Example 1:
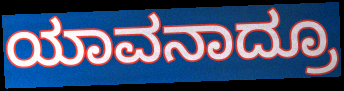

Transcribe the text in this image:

ಯಾವನಾದ್ರೂ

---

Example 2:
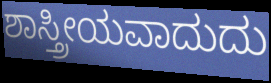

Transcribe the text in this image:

ಶಾಸ್ತ್ರೀಯವಾದುದು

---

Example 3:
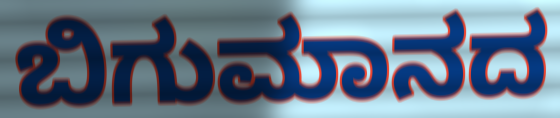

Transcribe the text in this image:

ಬಿಗುಮಾನದ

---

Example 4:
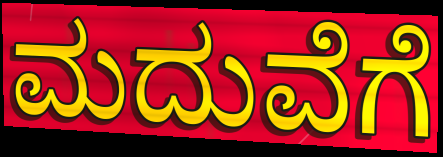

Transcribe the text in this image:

ಮದುವೆಗೆ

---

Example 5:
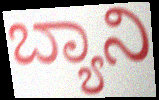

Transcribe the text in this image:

ಬ್ಯಾನಿ